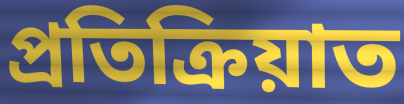
প্ৰতিক্ৰিয়াত